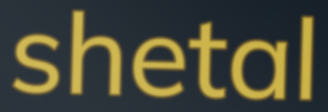
shetal